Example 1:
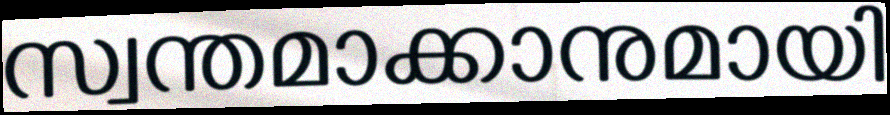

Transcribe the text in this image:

സ്വന്തമാക്കാനുമായി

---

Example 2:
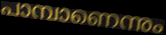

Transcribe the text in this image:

പാമ്പാണെന്നും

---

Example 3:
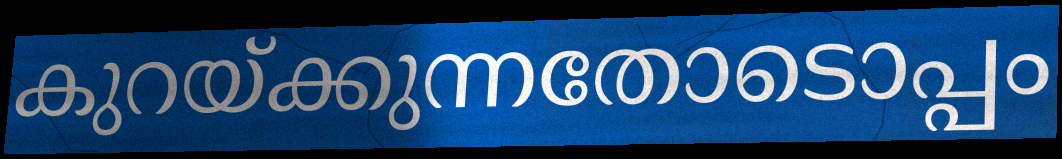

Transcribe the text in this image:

കുറയ്ക്കുന്നതോടൊപ്പം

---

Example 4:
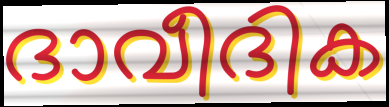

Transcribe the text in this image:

ദാവീദിക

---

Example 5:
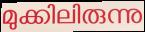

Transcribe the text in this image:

മുക്കിലിരുന്നു